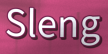
Sleng